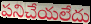
పనిచేయలేదు